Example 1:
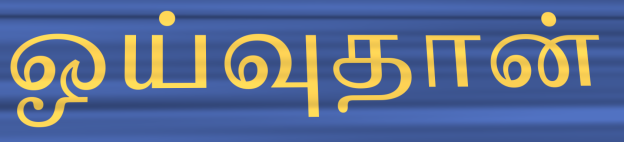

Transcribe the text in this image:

ஓய்வுதான்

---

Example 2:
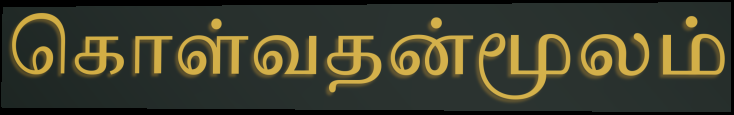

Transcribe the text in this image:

கொள்வதன்மூலம்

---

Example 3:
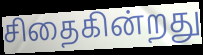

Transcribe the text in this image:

சிதைகின்றது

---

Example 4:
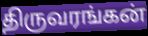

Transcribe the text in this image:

திருவரங்கன்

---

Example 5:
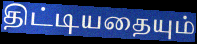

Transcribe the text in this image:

திட்டியதையும்